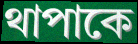
থাপাকে